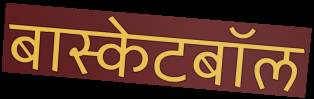
बास्केटबॉल